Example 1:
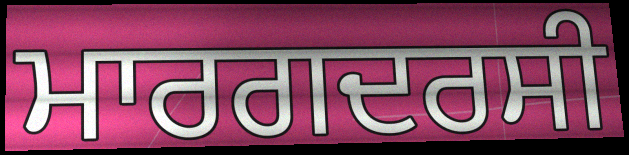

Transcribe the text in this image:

ਮਾਰਗਦਰਸੀ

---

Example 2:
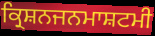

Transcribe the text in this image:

ਕ੍ਰਿਸ਼ਨਜਨਮਾਸ਼ਟਮੀ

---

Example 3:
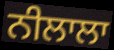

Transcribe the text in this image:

ਨੀਲਾਲਾ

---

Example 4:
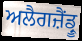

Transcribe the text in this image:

ਅਲੈਗਜ਼ੈਂਡ੍ਰੂ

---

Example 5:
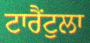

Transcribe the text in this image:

ਟਾਰੈਂਟੁਲਾ